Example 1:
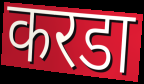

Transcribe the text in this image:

करडा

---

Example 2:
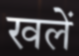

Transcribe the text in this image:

खलें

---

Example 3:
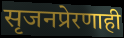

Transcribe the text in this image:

सृजनप्रेरणाही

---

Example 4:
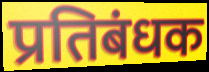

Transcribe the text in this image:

प्रतिबंधक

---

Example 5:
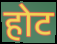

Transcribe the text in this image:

होट